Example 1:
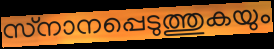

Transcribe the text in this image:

സ്‌നാനപ്പെടുത്തുകയും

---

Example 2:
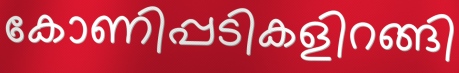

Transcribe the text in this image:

കോണിപ്പടികളിറങ്ങി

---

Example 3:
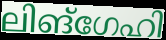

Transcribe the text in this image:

ലിങ്ഗേഹി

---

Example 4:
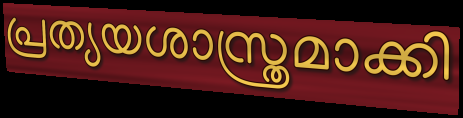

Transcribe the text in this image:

പ്രത്യയശാസ്ത്രമാക്കി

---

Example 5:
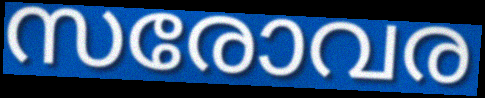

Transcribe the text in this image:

സരോവര